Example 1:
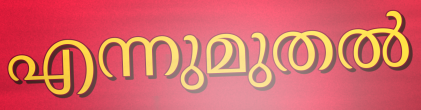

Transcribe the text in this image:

എന്നുമുതൽ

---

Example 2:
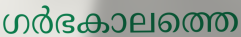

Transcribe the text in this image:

ഗർഭകാലത്തെ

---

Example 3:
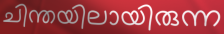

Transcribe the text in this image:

ചിന്തയിലായിരുന്ന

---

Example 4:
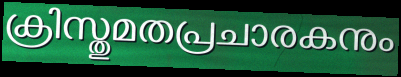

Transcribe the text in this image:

ക്രിസ്തുമതപ്രചാരകനും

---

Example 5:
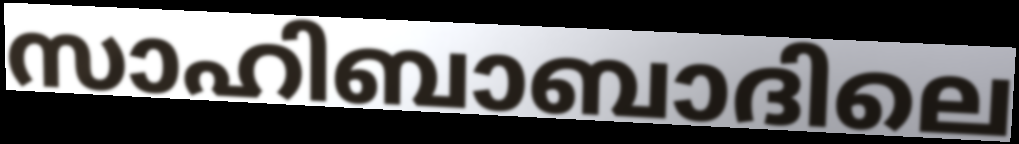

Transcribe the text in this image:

സാഹിബാബാദിലെ